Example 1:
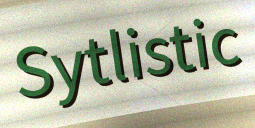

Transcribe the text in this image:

Sytlistic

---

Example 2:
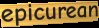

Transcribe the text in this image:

epicurean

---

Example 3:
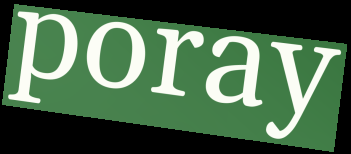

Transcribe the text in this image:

poray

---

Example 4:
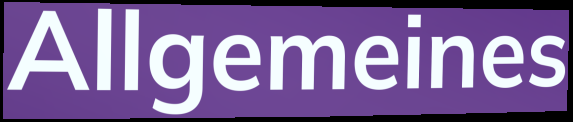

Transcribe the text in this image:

Allgemeines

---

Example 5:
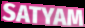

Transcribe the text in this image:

SATYAM